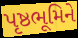
પૃષ્ઠભૂમિને